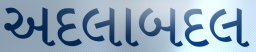
અદલાબદલ